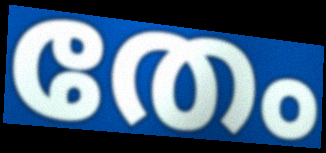
തേം